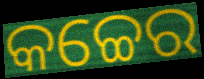
କଚ୍ଚେର